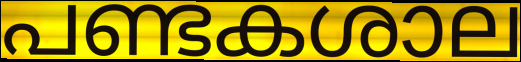
പണ്ടകശാല